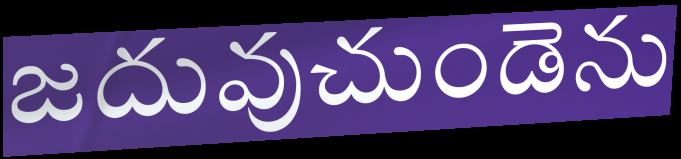
జదువుచుండెను